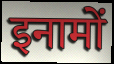
इनामों